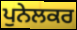
ਪੁਨੇਲਕਰ